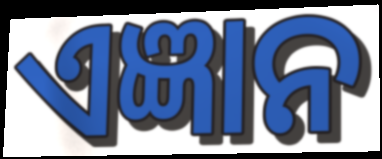
ଏଜ୍ଞାନ